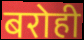
बरोही